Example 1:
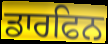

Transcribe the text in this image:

ਡਾਰਫਿਨ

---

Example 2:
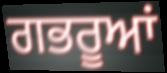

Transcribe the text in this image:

ਗਭਰੂਆਂ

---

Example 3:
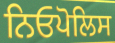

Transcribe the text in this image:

ਨਿਓਪੋਲਿਸ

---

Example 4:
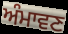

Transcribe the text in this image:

ਅੰਮਾਵਣ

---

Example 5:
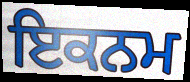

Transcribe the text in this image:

ਇਕਨਮ